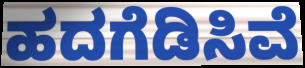
ಹದಗೆಡಿಸಿವೆ